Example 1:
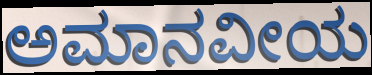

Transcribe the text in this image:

ಅಮಾನವೀಯ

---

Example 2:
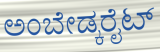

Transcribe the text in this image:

ಅಂಬೇಡ್ಕರೈಟ್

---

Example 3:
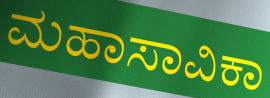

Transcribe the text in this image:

ಮಹಾಸಾವಿಕಾ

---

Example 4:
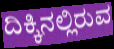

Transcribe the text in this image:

ದಿಕ್ಕಿನಲ್ಲಿರುವ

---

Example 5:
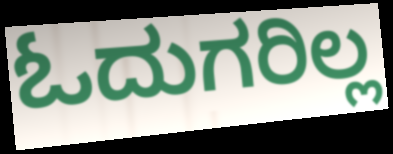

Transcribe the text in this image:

ಓದುಗರಿಲ್ಲ